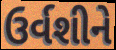
ઉર્વશીને